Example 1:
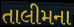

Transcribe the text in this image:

તાલીમના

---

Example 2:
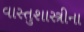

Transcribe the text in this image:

વાસ્તુશાસ્ત્રીના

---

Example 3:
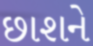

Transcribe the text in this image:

છાશને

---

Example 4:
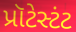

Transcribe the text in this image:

પ્રૉટેસ્ટંટ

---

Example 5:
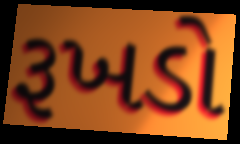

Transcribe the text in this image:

રૂખડો